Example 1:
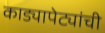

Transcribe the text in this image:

काड्यापेट्यांची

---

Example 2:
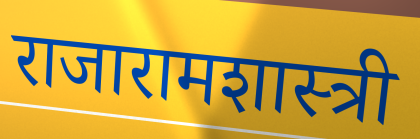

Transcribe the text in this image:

राजारामशास्त्री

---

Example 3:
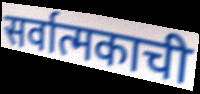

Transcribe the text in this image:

सर्वात्मकाची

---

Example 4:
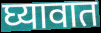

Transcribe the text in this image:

घ्यावात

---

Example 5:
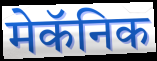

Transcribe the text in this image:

मेकॅनिक